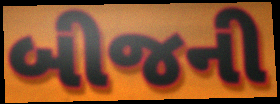
બીજની